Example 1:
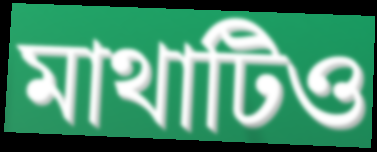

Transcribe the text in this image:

মাথাটিও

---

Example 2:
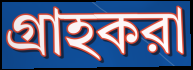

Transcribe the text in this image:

গ্রাহকরা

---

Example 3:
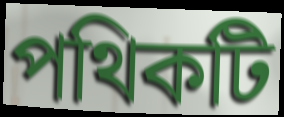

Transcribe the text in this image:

পথিকটি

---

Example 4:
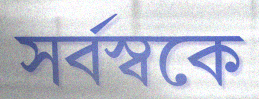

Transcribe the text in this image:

সর্বস্বকে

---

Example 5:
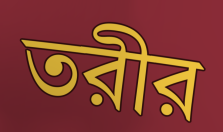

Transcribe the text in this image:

তরীর